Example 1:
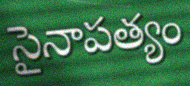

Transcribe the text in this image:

సైనాపత్యం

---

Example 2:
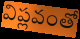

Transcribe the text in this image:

విప్లవంతో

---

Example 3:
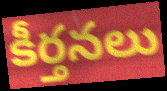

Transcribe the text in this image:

కీర్తనలు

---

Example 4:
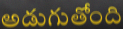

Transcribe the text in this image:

అడుగుతోంది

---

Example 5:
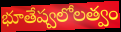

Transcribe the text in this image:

భూతేష్వలోలత్వం